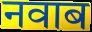
नवाब